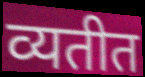
व्यतीत